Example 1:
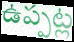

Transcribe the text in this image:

ఉప్పట్ల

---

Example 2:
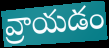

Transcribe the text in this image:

వ్రాయడం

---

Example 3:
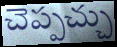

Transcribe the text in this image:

చెప్పచ్చు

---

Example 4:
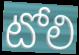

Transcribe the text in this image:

టోలి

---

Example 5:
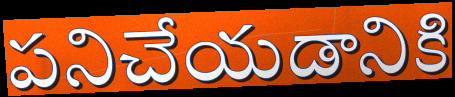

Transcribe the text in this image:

పనిచేయడానికి